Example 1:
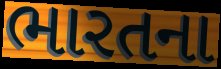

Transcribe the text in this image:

ભારતના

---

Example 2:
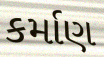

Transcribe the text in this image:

કર્માણ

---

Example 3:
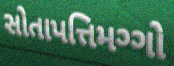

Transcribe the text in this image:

સોતાપત્તિમગ્ગો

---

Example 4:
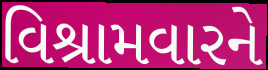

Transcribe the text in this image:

વિશ્રામવારને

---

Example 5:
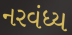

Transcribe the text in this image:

નરવંધ્ય